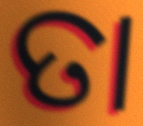
ତା